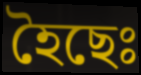
হৈছেঃ